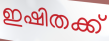
ഇഷിതക്ക്